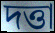
দত্তা